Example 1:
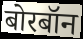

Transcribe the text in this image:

बोरबॉन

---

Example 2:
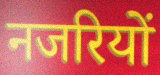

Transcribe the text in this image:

नजरियों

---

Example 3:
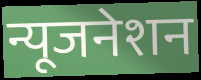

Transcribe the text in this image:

न्यूजनेशन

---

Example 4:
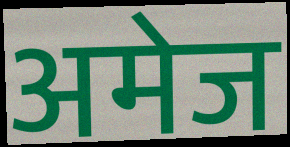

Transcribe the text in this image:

अमेज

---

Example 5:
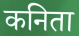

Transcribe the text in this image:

कनिता